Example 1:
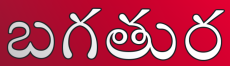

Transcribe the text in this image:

బగతుర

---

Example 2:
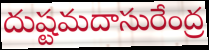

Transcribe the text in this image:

దుష్టమదాసురేంద్ర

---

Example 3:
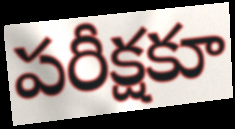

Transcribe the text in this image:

పరీక్షకూ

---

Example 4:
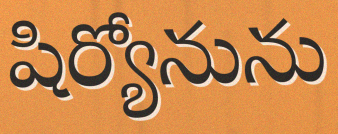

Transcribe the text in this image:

షిర్యోనును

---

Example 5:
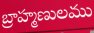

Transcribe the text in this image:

బ్రాహ్మణులము